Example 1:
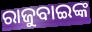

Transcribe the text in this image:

ରାଜୁବାଇଙ୍କ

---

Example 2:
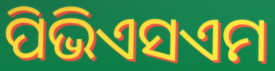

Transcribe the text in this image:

ପିଭିଏସଏମ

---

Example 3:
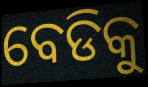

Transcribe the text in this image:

ବେଡିକୁ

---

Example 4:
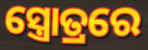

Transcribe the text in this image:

ସ୍ତ୍ରୋତ୍ରରେ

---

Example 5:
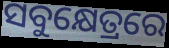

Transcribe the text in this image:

ସବୁକ୍ଷେତ୍ରରେ